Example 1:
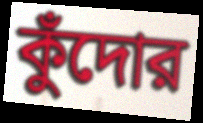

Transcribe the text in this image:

কুঁদোর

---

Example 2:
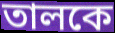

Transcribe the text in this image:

তালকে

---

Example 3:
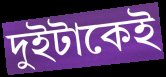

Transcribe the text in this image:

দুইটাকেই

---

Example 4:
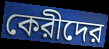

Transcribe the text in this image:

কেরীদের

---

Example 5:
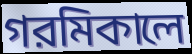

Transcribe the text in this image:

গরমিকালে